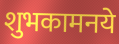
शुभकामनये